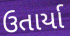
ઉતાર્યા